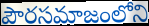
పౌరసమాజంలోని